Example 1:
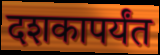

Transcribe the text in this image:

दशकापर्यंत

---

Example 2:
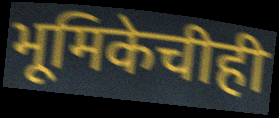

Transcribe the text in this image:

भूमिकेचीही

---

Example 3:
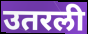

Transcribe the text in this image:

उतरली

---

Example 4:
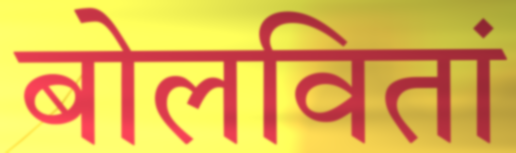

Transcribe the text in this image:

बोलवितां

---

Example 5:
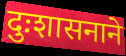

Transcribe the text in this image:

दुःशासनाने